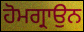
ਹੋਮਗ੍ਰਾਉਨ